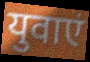
युवाएं